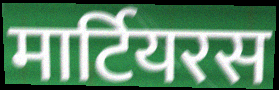
मार्टियरस